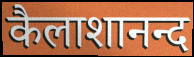
कैलाशानन्द